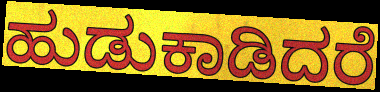
ಹುಡುಕಾಡಿದರೆ